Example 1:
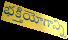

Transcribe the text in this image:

భక్తియోగాన్ని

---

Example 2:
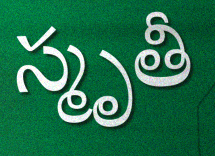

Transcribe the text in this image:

స్మృతీ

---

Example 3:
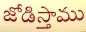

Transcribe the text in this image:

జోడిస్తాము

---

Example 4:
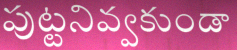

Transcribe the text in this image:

పుట్టనివ్వకుండా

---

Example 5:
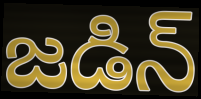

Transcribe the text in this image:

జడిన్